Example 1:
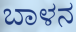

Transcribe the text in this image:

ಬಾಳನ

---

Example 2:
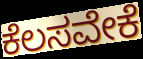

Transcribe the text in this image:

ಕೆಲಸವೇಕೆ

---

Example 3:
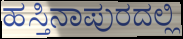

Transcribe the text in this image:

ಹಸ್ತಿನಾಪುರದಲ್ಲಿ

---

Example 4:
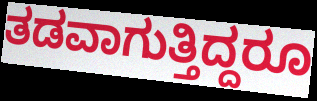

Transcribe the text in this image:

ತಡವಾಗುತ್ತಿದ್ದರೂ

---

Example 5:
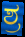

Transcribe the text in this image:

ಶ್ರ